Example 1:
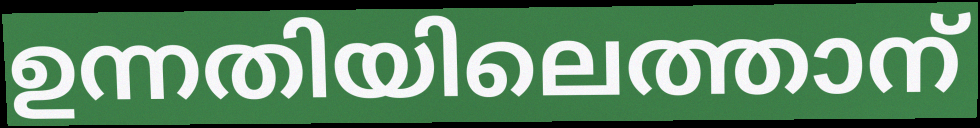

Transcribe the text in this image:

ഉന്നതിയിലെത്താന്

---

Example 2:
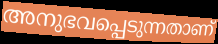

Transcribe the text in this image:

അനുഭവപ്പെടുന്നതാണ്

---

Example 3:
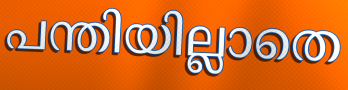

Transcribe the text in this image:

പന്തിയില്ലാതെ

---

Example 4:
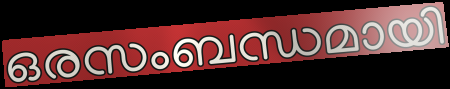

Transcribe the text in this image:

ഒരസംബന്ധമായി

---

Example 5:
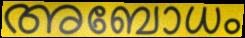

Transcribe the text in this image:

അബോധം